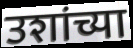
उशांच्या